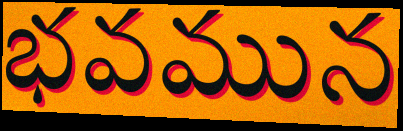
భవమున